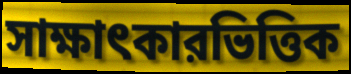
সাক্ষাৎকারভিত্তিক